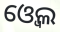
ଓ୍ବେଲ